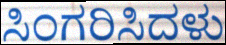
ಸಿಂಗರಿಸಿದಳು